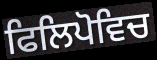
ਫਿਲਿਪੋਵਿਚ